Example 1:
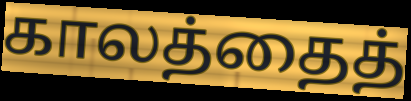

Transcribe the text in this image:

காலத்தைத்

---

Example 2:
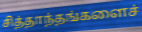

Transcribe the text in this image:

சித்தாந்தங்களைச்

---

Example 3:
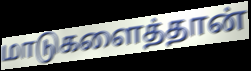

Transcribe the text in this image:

மாடுகளைத்தான்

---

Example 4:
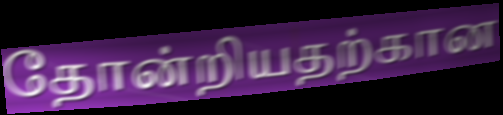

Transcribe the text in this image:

தோன்றியதற்கான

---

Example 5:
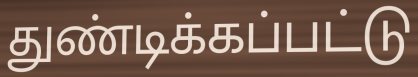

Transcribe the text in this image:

துண்டிக்கப்பட்டு